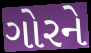
ગોરને